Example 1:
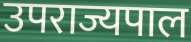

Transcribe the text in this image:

उपराज्यपाल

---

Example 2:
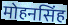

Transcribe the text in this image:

मोहनसिंह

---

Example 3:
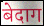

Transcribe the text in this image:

बेदाग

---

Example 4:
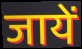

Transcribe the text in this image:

जायें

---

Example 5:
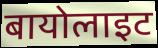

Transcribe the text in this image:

बायोलाइट